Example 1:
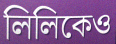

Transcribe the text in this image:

লিলিকেও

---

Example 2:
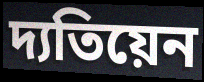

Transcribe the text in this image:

দ্যতিয়েন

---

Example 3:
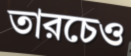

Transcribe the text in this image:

তারচেও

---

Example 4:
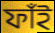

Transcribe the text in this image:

ফাঁই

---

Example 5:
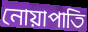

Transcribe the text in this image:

নোয়াপাতি